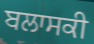
ਬਲਾਸਕੀ